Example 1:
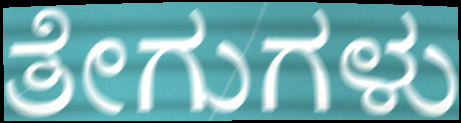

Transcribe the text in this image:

ತೇಗುಗಳು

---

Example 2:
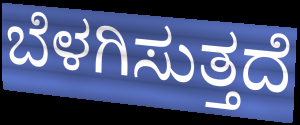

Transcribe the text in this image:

ಬೆಳಗಿಸುತ್ತದೆ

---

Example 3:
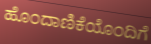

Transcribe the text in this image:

ಹೊಂದಾಣಿಕೆಯೊಂದಿಗೆ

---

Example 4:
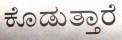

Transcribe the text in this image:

ಕೊಡುತ್ತಾರೆ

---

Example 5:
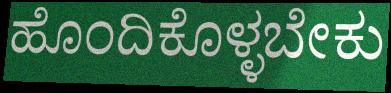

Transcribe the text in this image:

ಹೊಂದಿಕೊಳ್ಳಬೇಕು